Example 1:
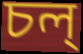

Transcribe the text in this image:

চল্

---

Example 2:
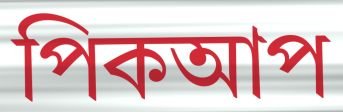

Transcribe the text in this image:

পিকআপ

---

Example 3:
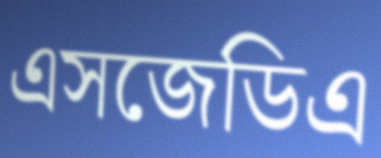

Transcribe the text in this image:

এসজেডিএ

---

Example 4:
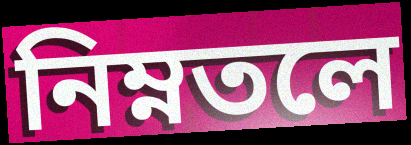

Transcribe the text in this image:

নিম্নতলে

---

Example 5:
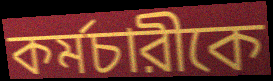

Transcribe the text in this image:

কর্মচারীকে